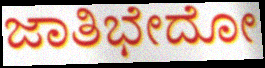
ಜಾತಿಭೇದೋ